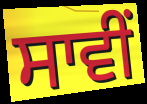
ਸਾਵੀਂ